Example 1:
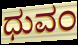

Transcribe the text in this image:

ಧುವಂ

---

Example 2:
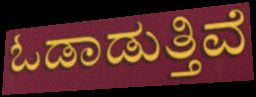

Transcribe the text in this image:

ಓಡಾಡುತ್ತಿವೆ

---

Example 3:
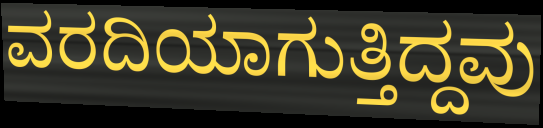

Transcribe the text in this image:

ವರದಿಯಾಗುತ್ತಿದ್ದವು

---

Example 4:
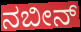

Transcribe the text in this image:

ನಬೀನ್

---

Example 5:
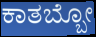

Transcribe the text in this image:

ಕಾತಬ್ಬೋ